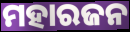
ମହାରଜନ